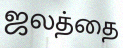
ஜலத்தை